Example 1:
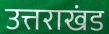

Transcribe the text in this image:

उत्तराखंड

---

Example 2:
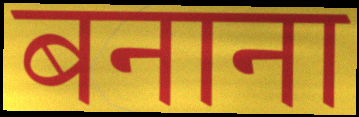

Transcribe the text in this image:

बनाना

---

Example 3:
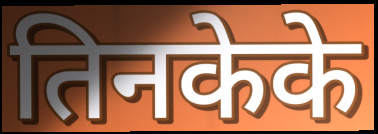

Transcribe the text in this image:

तिनकेके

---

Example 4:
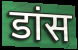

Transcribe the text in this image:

डांस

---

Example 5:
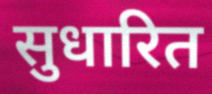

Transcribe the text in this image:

सुधारित